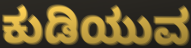
ಕುಡಿಯುವ